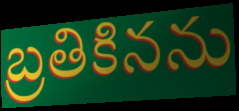
బ్రతికినను